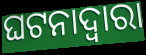
ଘଟନାଦ୍ୱାରା